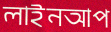
লাইনআপ